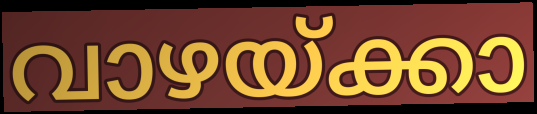
വാഴയ്ക്കാ